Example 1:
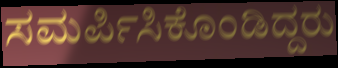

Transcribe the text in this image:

ಸಮರ್ಪಿಸಿಕೊಂಡಿದ್ದರು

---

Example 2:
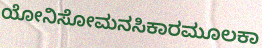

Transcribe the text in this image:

ಯೋನಿಸೋಮನಸಿಕಾರಮೂಲಕಾ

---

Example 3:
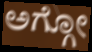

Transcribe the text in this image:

ಅಗ್ಗೋ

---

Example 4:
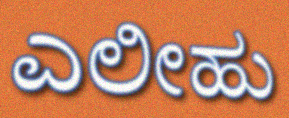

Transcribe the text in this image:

ಎಲೀಹು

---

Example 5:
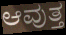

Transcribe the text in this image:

ಆವುತ್ತ